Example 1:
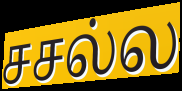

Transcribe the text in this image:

சசல்ல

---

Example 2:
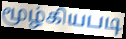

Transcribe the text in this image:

மூழ்கியபடி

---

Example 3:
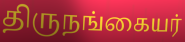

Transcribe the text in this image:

திருநங்கையர்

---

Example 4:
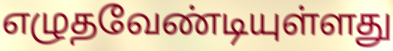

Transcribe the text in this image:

எழுதவேண்டியுள்ளது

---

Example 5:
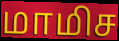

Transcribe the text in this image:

மாமிச